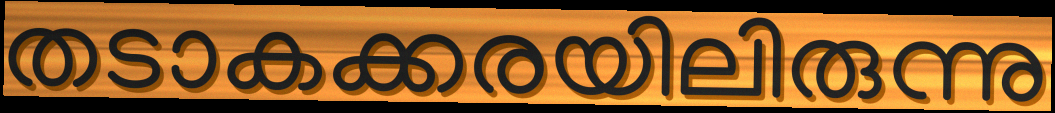
തടാകക്കരയിലിരുന്നു